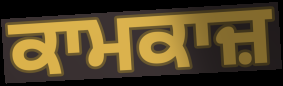
ਕਾਮਕਾਜ਼